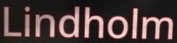
Lindholm